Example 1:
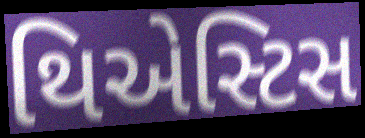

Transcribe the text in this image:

થિએસ્ટિસ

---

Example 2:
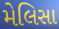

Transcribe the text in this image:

મેલિસા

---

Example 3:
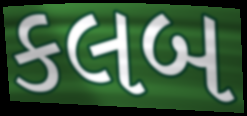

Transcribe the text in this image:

કલબ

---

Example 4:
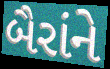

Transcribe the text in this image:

બૈરાંને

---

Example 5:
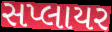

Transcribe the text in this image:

સપ્લાયર